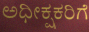
ಅಧೀಕ್ಷಕರಿಗೆ